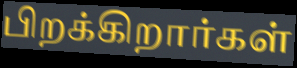
பிறக்கிறார்கள்